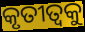
କୃତୀତ୍ଵକୁ